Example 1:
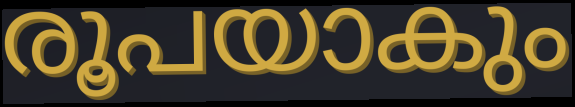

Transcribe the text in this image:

രൂപയാകും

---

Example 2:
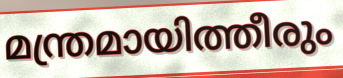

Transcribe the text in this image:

മന്ത്രമായിത്തീരും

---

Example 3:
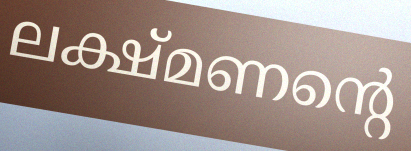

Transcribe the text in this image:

ലക്ഷ്മണന്റെ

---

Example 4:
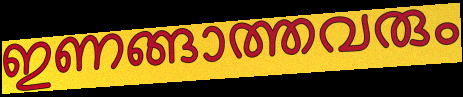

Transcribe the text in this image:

ഇണങ്ങാത്തവരും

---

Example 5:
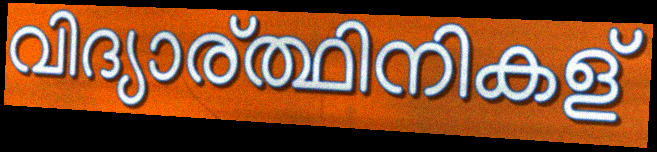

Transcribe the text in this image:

വിദ്യാര്ത്ഥിനികള്